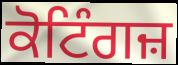
ਕੋਟਿੰਗਜ਼